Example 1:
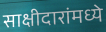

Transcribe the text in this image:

साक्षीदारांमध्ये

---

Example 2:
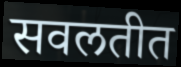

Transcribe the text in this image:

सवलतीत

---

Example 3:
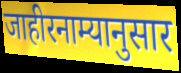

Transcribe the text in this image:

जाहीरनाम्यानुसार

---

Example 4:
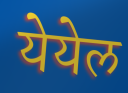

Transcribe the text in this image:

येयेल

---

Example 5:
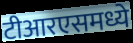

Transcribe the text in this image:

टीआरएसमध्ये